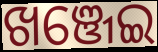
ଖଞ୍ଜେଇ